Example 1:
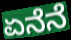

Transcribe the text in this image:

ಏನೆನೆ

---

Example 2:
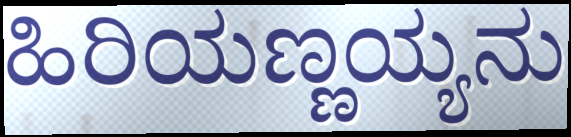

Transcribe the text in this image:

ಹಿರಿಯಣ್ಣಯ್ಯನು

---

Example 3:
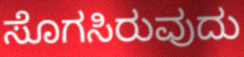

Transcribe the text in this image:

ಸೊಗಸಿರುವುದು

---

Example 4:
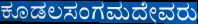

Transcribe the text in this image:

ಕೂಡಲಸಂಗಮದೇವರು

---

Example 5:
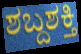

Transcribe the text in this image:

ಶಬ್ದಶಕ್ತಿ